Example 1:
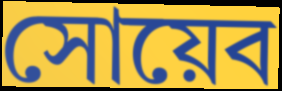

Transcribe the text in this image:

সোয়েব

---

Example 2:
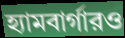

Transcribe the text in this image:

হ্যামবার্গারও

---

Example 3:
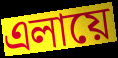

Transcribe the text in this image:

এলায়ে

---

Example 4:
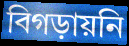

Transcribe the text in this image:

বিগড়ায়নি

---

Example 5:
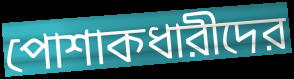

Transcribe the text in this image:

পোশাকধারীদের